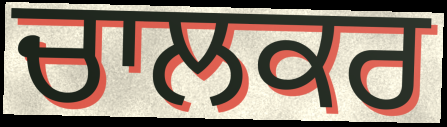
ਚਾਲਕਰ